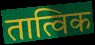
तात्विक